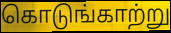
கொடுங்காற்று